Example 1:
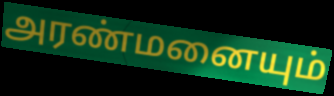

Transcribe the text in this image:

அரண்மனையும்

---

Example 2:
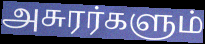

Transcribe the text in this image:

அசுரர்களும்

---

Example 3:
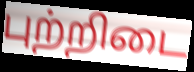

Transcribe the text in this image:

புற்றிடை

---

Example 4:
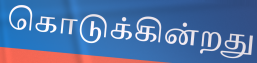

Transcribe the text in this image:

கொடுக்கின்றது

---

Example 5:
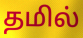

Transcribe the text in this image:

தமில்